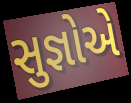
સુજ્ઞોએ